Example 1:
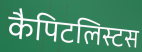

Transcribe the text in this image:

कैपिटलिस्टस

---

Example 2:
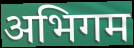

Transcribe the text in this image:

अभिगम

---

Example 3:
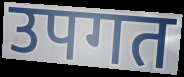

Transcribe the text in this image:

उपगत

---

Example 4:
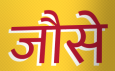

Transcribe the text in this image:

जौसे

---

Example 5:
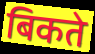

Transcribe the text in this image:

बिकते